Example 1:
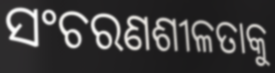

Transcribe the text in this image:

ସଂଚରଣଶୀଳତାକୁ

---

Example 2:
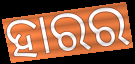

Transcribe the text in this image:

ହାରର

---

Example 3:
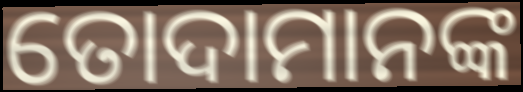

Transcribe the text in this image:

ତୋଦାମାନଙ୍କ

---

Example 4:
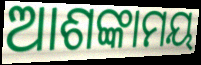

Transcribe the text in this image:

ଆଶଙ୍କାମୟ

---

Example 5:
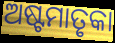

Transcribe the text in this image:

ଅଷ୍ଟମାତୃକା